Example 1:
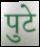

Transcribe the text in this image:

पुटे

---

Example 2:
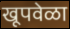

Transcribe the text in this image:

खूपवेळा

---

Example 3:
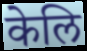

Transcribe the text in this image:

केलि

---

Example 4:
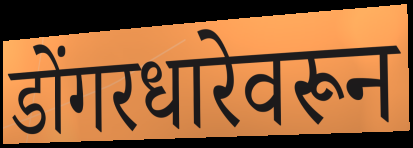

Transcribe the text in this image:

डोंगरधारेवरून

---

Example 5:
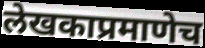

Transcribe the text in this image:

लेखकाप्रमाणेच